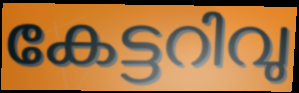
കേട്ടറിവു